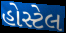
હોસ્ટેલ